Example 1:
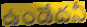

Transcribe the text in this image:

ఉండేదనీ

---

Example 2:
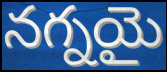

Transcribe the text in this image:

నగ్నయై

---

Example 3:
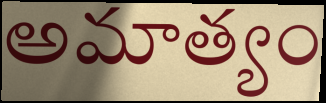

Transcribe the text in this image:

అమాత్యం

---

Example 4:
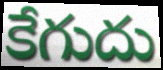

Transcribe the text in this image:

కేగుదు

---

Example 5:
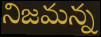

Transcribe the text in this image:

నిజమన్న